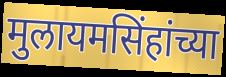
मुलायमसिंहांच्या